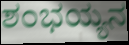
ಶಂಭಯ್ಯನ